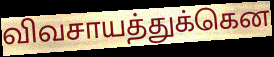
விவசாயத்துக்கென